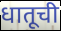
धातूची